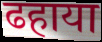
ढहाया